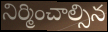
నిర్మించాల్సిన